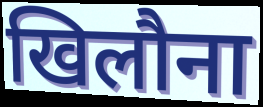
खिलौना